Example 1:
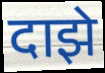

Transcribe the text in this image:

दाझे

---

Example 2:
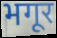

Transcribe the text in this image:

भगूर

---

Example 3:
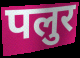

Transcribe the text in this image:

पलुर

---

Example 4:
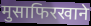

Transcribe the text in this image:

मुसाफिरखाने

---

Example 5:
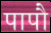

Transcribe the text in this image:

पापौ